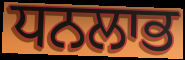
ਧਨਲਾਭ